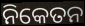
ନିକେତନ